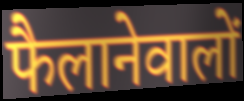
फैलानेवालों